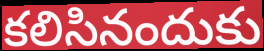
కలిసినందుకు